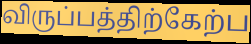
விருப்பத்திற்கேற்ப